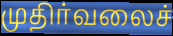
முதிர்வலைச்